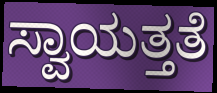
ಸ್ವಾಯತ್ತತೆ